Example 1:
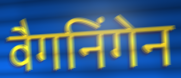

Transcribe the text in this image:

वैगनिंगेन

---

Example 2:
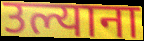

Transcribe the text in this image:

उल्याना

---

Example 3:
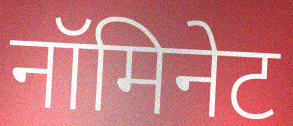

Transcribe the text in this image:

नॉमिनेट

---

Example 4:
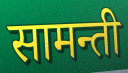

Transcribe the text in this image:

सामन्ती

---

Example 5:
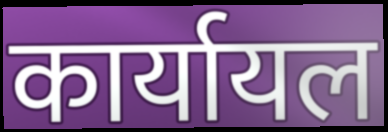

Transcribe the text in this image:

कार्यायल